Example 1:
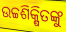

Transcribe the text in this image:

ଉଚ୍ଚଶିକ୍ଷିତଙ୍କୁ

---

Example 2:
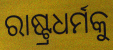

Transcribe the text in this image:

ରାଷ୍ଟ୍ରଧର୍ମକୁ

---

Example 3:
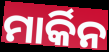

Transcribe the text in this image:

ମାର୍କିନ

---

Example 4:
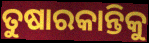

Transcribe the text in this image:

ତୁଷାରକାନ୍ତିକୁ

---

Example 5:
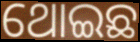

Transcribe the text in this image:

ଥୋଇଛ